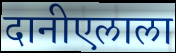
दानीएलाला